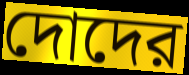
দোদের